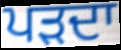
ਪੜਦਾ